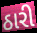
ઠારી